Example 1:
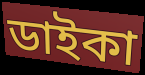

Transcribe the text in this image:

ডাইকা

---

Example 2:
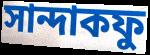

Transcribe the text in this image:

সান্দাকফু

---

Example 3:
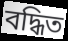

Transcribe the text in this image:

বদ্ধিত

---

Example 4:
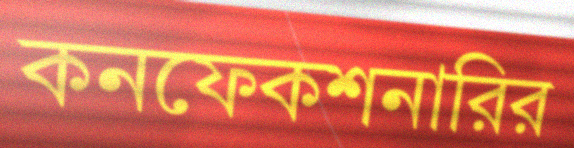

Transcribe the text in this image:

কনফেকশনারির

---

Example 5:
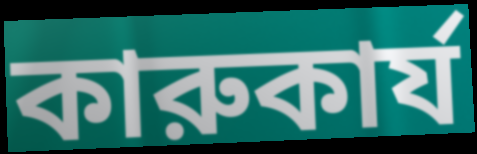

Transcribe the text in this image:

কারুকার্য